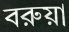
বরুয়া